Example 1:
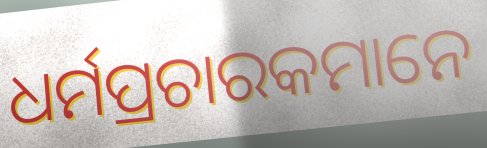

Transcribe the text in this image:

ଧର୍ମପ୍ରଚାରକମାନେ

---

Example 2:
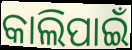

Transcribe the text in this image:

କାଲିପାଇଁ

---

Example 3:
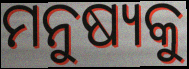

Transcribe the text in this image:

ମନୁଷ୍ୟକୁ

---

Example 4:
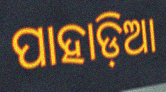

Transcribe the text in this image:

ପାହାଡ଼ିଆ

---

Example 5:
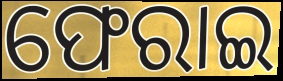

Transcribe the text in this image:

ଫେରାଇ